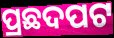
ପ୍ରଛଦପଟ